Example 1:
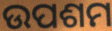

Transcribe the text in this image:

ଉପଶମ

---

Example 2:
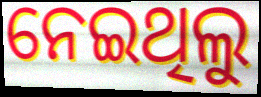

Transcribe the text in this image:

ନେଇଥିଲୁ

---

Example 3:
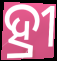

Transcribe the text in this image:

ହ୍ରୀ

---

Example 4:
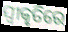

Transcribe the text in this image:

ସ୍ବୀକୃତିରେ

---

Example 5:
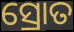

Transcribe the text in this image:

ସ୍ରୋତ